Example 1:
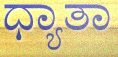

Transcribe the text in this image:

ಧ್ಯಾತಾ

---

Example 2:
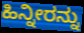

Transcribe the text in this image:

ಹಿನ್ನೀರನ್ನು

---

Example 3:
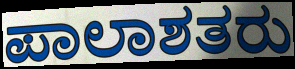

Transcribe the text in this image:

ಪಾಲಾಶತರು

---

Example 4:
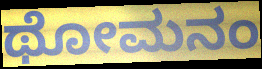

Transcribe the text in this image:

ಥೋಮನಂ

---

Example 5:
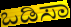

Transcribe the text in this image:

ಒಡಿಸಾ